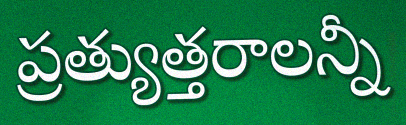
ప్రత్యుత్తరాలన్నీ